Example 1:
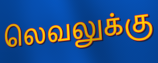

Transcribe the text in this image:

லெவலுக்கு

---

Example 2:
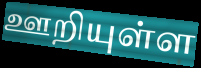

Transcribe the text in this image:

ஊறியுள்ள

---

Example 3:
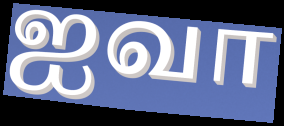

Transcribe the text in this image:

ஐவா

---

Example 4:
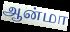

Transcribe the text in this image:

ஆன்மா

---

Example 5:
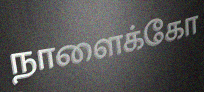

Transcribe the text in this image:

நாளைக்கோ